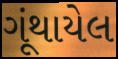
ગૂંથાયેલ